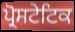
ਪ੍ਰੋਸਟੇਟਿਕ